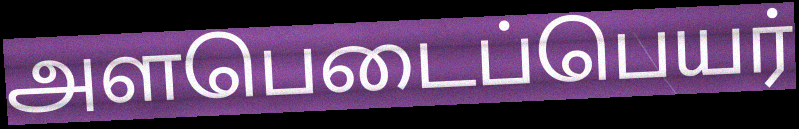
அளபெடைப்பெயர்